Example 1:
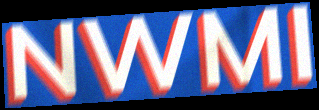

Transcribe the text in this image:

NWMI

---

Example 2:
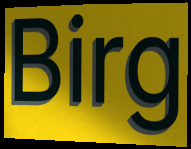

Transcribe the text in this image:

Birg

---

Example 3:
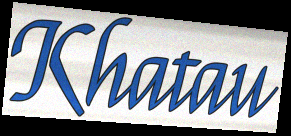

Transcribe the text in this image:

Khatau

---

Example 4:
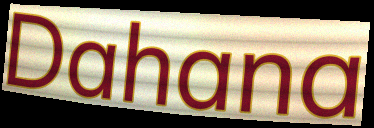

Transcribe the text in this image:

Dahana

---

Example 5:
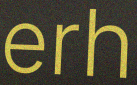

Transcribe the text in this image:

erh